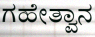
ಗಹೇತ್ವಾನ